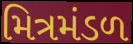
મિત્રમંડળ